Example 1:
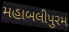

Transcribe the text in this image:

મહાબલીપુરમ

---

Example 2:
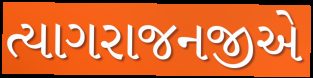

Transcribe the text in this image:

ત્યાગરાજનજીએ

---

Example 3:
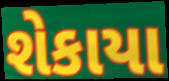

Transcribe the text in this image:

શેકાયા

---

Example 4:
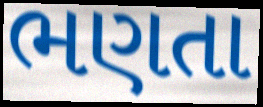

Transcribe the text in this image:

ભણતા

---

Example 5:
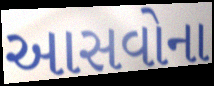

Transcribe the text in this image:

આસવોના